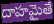
దాహమైతే